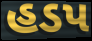
હડપ